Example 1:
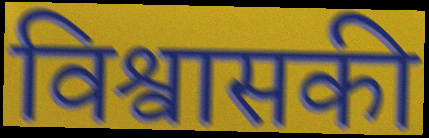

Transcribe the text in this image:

विश्वासकी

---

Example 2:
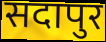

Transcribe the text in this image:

सदापुर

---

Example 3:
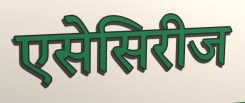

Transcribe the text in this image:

एसेसिरीज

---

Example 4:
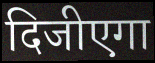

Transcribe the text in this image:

दिजीएगा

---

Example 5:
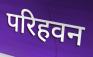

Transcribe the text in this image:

परिहवन